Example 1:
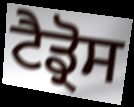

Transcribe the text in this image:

ਟੈਡ੍ਰੋਸ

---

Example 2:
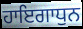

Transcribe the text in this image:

ਹਾਇਗਾਧੁਨ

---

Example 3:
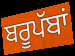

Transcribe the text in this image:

ਬਰੂਪੱਬਾਂ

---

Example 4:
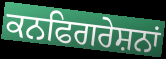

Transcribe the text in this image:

ਕਨਫਿਗਰੇਸ਼ਨਾਂ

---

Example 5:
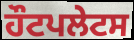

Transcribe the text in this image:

ਹੌਟਪਲੇਟਸ